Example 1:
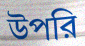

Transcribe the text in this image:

উপরি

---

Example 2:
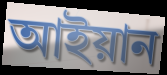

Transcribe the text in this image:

আইয়ান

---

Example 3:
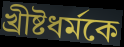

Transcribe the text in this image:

খ্রীষ্টধর্মকে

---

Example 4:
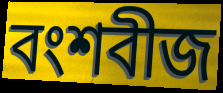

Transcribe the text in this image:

বংশবীজ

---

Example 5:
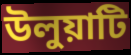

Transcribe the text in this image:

উলুয়াটি